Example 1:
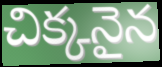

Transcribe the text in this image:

చిక్కనైన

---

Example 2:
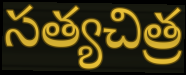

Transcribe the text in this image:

సత్యచిత్ర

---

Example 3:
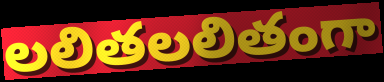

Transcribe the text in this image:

లలితలలితంగా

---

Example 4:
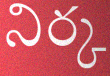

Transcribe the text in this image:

నిర్క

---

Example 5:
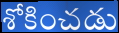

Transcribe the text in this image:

శోకించడు